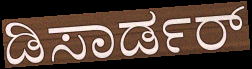
ಡಿಸಾರ್ಡರ್